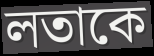
লতাকে